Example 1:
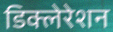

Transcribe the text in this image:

डिक्लेरेशन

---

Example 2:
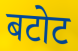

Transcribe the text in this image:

बटोट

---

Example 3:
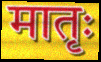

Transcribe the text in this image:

मातृः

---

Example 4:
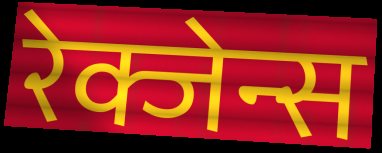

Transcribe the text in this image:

रेक्जेन्स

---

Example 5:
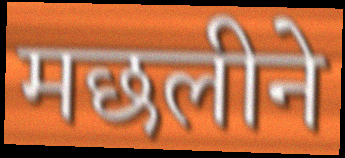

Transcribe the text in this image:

मछलीने